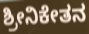
ಶ್ರೀನಿಕೇತನ